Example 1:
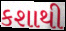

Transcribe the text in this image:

કશાથી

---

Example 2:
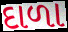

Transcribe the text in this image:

દાળા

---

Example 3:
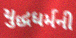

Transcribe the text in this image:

યુદ્ધધર્મની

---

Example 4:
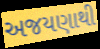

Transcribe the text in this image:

અજયણાથી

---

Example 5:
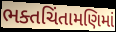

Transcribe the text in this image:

ભક્તચિંતામણિમાં